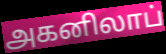
அகனிலாப்